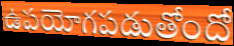
ఉపయోగపడుతోందో